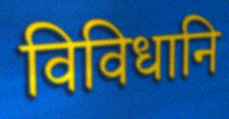
विविधानि